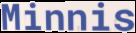
Minnis